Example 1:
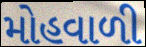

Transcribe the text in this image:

મોહવાળી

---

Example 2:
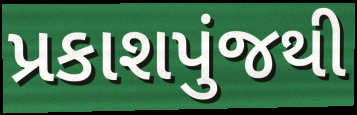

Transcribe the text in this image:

પ્રકાશપુંજથી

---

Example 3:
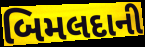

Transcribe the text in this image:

બિમલદાની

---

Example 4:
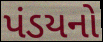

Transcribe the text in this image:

પંડયનો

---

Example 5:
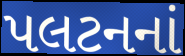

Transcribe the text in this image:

પલટનનાં